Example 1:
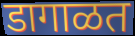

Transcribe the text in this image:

डागाळत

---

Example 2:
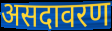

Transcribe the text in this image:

असदावरण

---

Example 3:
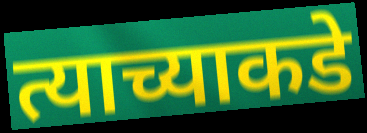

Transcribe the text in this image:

त्याच्याकडे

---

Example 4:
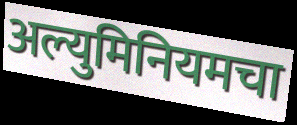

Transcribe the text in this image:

अल्युमिनियमचा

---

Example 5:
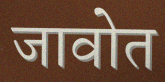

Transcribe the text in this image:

जावोत